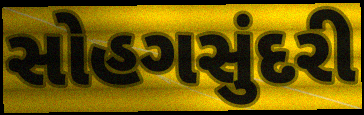
સોહગસુંદરી